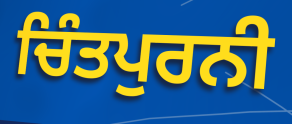
ਚਿੰਤਪੁਰਨੀ